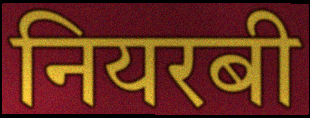
नियरबी